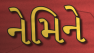
નેમિને